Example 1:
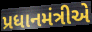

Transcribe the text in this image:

પ્રધાનમંત્રીએ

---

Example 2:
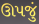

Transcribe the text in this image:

ઊપજું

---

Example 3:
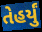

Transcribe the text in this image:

તેહર્યું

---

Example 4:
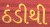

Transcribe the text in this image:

ઠંડીથી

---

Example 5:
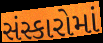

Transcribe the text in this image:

સંસ્કારોમાં